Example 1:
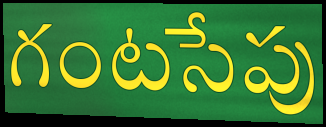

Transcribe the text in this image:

గంటసేపు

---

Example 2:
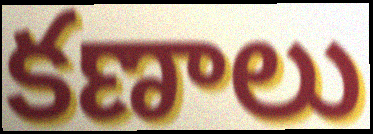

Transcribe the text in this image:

కణాలు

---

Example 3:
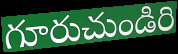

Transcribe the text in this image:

గూరుచుండిరి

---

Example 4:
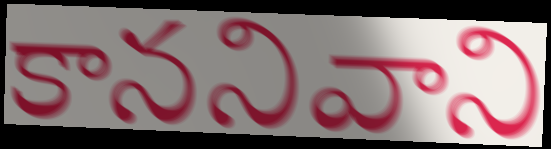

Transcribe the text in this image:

కాననివాని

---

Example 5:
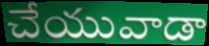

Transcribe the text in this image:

చేయువాడా